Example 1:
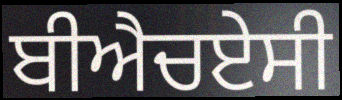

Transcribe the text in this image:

ਬੀਐਚਏਸੀ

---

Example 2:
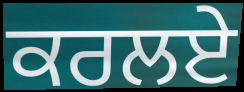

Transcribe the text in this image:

ਕਰਲਏ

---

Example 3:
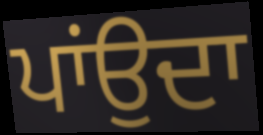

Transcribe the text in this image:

ਪਾਂਉਦਾ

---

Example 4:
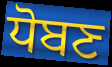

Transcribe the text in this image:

ਧੋਬਣ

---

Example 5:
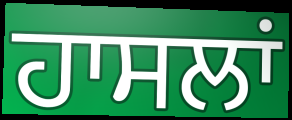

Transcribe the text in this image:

ਹਾਸਲਾਂ